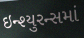
ઇન્શ્યુરન્સમાં